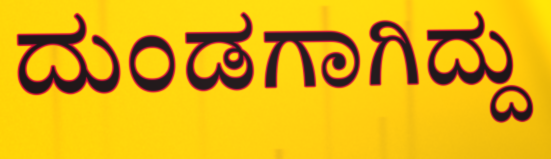
ದುಂಡಗಾಗಿದ್ದು